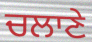
ਚਲਾਣੇ